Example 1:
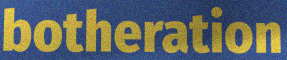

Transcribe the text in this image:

botheration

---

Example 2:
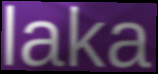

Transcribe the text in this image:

laka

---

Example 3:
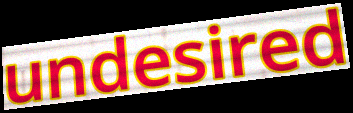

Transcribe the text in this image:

undesired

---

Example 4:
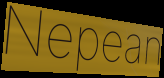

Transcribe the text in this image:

Nepean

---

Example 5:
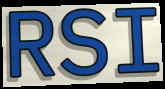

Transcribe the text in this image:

RSI